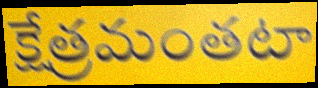
క్షేత్రమంతటా